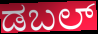
ಡಬಲ್